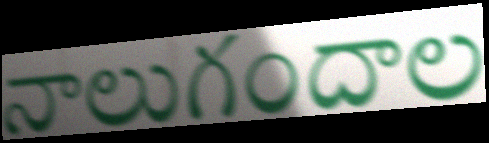
నాలుగందాల